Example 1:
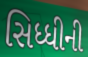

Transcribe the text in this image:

સિધ્ધીની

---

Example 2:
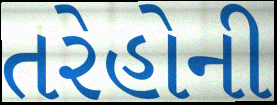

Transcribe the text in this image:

તરેહોની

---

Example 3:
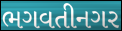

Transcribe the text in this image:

ભગવતીનગર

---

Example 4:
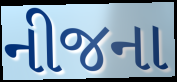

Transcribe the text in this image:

નીજના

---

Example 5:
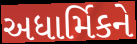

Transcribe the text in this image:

અધાર્મિકને